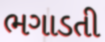
ભગાડતી